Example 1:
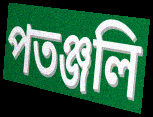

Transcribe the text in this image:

পতঞ্জলি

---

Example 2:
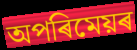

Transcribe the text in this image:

অপৰিমেয়ৰ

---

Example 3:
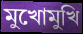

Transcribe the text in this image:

মুখোমুখি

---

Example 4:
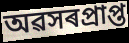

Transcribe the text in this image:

অৱসৰপ্ৰাপ্ত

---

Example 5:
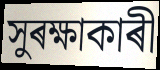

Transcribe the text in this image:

সুৰক্ষাকাৰী